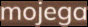
mojega